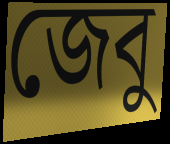
জেবু